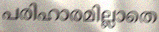
പരിഹാരമില്ലാതെ